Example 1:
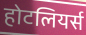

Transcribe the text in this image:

होटलियर्स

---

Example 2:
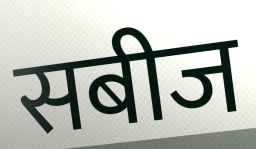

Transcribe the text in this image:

सबीज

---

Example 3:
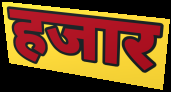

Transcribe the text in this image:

हजार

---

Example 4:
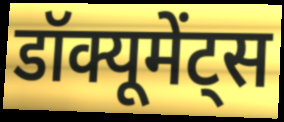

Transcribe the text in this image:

डॉक्यूमेंट्स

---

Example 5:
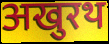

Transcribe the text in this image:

अखुरथ